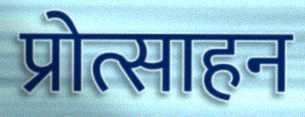
प्रोत्साहन